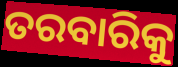
ତରବାରିକୁ